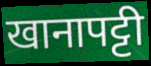
खानापट्टी